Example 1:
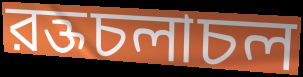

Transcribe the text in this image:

রক্তচলাচল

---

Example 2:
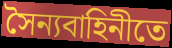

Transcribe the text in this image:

সৈন্যবাহিনীতে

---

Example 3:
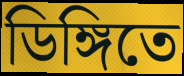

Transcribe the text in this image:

ডিঙ্গিতে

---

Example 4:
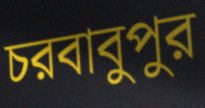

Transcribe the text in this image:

চরবাবুপুর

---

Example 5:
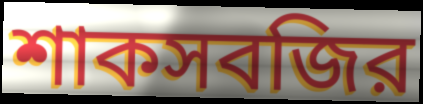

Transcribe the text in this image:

শাকসবজির